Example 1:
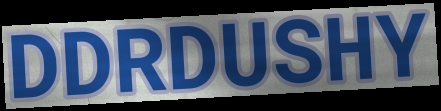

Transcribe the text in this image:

DDRDUSHY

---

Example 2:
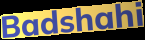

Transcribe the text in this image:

Badshahi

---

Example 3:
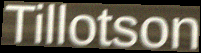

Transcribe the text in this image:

Tillotson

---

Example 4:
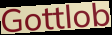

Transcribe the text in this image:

Gottlob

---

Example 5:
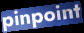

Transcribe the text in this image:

pinpoint